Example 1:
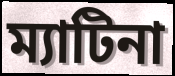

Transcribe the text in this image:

ম্যাটিনা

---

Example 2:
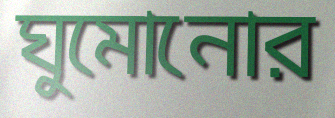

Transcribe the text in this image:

ঘুমোনোর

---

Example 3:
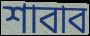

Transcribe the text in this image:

শাবাব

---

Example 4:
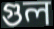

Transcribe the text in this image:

গুল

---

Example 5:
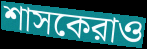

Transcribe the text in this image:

শাসকেরাও